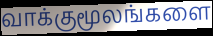
வாக்குமூலங்களை